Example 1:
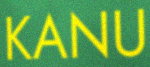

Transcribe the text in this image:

KANU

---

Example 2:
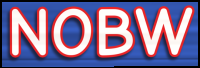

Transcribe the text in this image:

NOBW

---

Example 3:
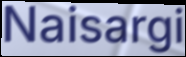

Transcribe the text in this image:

Naisargi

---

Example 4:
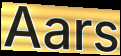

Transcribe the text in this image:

Aars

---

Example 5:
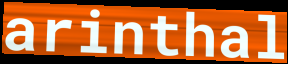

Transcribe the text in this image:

arinthal